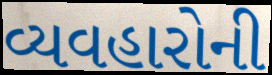
વ્યવહારોની